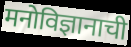
मनोविज्ञानाची